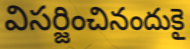
విసర్జించినందుకై